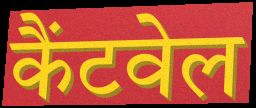
कैंटवेल